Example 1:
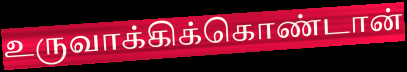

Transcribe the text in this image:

உருவாக்கிக்கொண்டான்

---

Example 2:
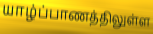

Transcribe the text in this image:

யாழ்ப்பாணத்திலுள்ள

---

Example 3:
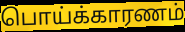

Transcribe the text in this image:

பொய்க்காரணம்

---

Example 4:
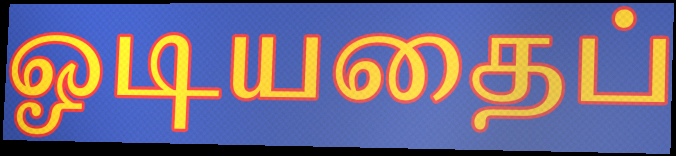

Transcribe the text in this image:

ஓடியதைப்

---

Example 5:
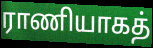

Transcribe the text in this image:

ராணியாகத்